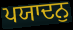
ਪਯਾਦਨੁ